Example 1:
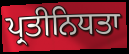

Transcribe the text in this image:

ਪ੍ਰਤੀਨਿਧਤਾ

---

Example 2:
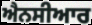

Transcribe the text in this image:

ਐਨਸੀਆਰ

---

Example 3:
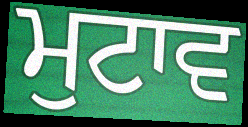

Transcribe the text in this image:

ਮੁਟਾਵ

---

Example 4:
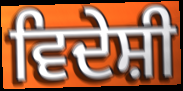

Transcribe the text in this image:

ਵਿਦੇਸ਼ੀ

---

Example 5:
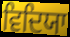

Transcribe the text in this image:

ਵਿਦਿਯਾ